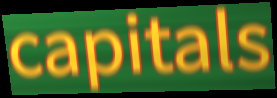
capitals